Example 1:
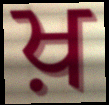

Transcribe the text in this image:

ਖ਼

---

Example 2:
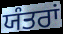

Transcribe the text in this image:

ਯੰਤਰਾਂ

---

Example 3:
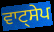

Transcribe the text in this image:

ਵਾਟ੍ਸੇਪ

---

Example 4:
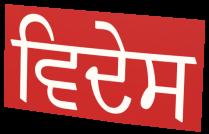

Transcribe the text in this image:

ਵਿਦੇਸ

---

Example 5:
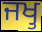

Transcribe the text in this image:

ਜਖ੍ਤ